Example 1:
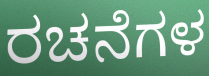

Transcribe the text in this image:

ರಚನೆಗಳ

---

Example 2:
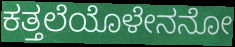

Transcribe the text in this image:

ಕತ್ತಲೆಯೊಳೇನನೋ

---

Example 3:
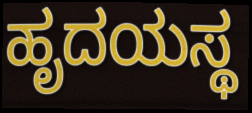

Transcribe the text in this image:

ಹೃದಯಸ್ಥ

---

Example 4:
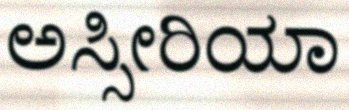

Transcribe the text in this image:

ಅಸ್ಸೀರಿಯಾ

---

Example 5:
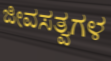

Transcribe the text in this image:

ಜೀವಸತ್ವಗಳ